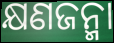
କ୍ଷଣଜନ୍ମା